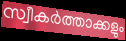
സ്വീകർത്താക്കളും